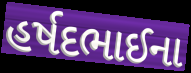
હર્ષદભાઈના